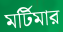
মর্টিমার